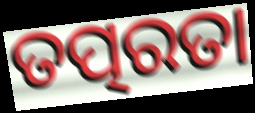
ତତ୍ପରତା